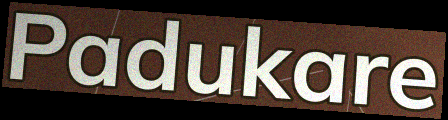
Padukare